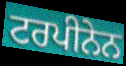
ਟਰਪੀਨੇਨ